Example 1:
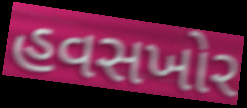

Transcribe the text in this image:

હવસખોર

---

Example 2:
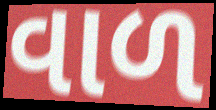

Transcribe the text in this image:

વાળ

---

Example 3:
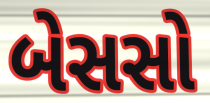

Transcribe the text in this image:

બેસસો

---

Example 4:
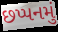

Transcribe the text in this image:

છપ્પનમું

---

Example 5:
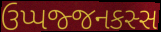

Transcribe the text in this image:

ઉપ્પજ્જનકસ્સ